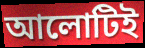
আলোটিই